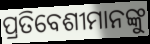
ପ୍ରତିବେଶୀମାନଙ୍କୁ